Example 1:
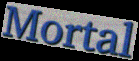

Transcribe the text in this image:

Mortal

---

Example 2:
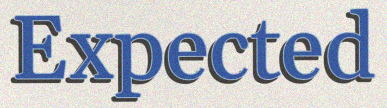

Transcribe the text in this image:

Expected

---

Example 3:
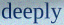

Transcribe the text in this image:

deeply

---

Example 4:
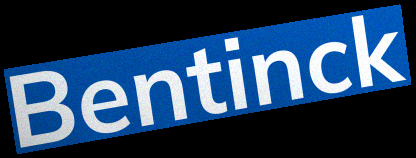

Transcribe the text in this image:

Bentinck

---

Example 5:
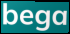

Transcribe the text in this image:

bega